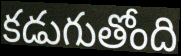
కడుగుతోంది